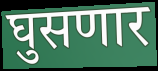
घुसणार